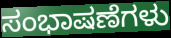
ಸಂಭಾಷಣೆಗಳು